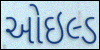
ઓઇલ્ડ